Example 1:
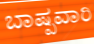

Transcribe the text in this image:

ಬಾಷ್ಪವಾರಿ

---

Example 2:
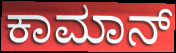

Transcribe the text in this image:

ಕಾಮಾನ್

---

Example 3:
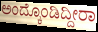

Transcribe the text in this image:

ಅಂದ್ಕೊಂಡಿದ್ದೀರಾ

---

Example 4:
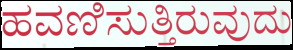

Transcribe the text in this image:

ಹವಣಿಸುತ್ತಿರುವುದು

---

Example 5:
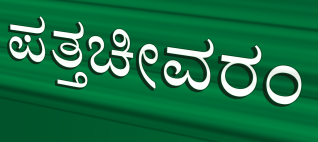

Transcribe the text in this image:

ಪತ್ತಚೀವರಂ